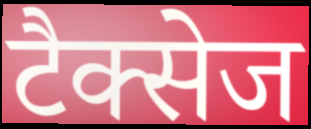
टैक्सेज